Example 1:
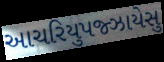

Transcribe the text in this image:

આચરિયુપજ્ઝાયેસુ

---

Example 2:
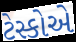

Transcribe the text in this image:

ટેસ્કોએ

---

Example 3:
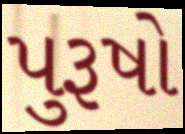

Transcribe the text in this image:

પુરૂષો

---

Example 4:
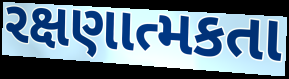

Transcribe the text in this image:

રક્ષણાત્મકતા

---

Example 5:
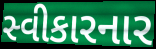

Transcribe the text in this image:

સ્વીકારનાર